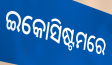
ଇକୋସିଷ୍ଟମରେ